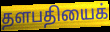
தளபதியைக்